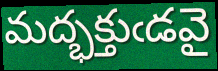
మద్భక్తుఁడవై